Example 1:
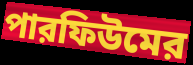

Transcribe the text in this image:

পারফিউমের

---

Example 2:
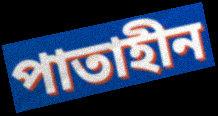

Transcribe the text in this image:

পাতাহীন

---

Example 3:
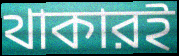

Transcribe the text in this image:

থাকারই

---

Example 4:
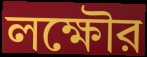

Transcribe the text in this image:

লক্ষৌর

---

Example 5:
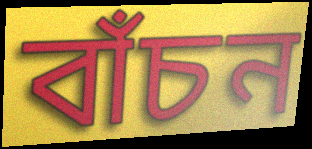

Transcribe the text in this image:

বাঁচন